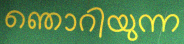
ഞൊറിയുന്ന